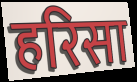
हरिसा